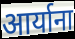
आर्याना